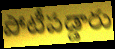
పోటీపడ్డారు